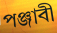
পঞ্জাবী